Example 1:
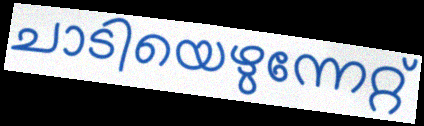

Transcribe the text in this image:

ചാടിയെഴുന്നേറ്റ്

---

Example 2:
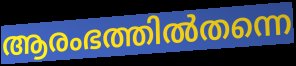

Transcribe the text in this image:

ആരംഭത്തിൽതന്നെ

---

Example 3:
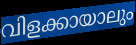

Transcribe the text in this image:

വിളക്കായാലും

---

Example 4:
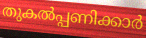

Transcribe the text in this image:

തുകൽപ്പണിക്കാർ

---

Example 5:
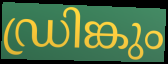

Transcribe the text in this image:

ഡ്രിങ്കും